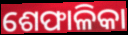
ଶେଫାଳିକା